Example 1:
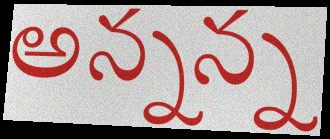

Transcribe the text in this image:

అన్నన్న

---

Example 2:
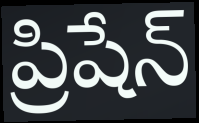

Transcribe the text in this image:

ప్రిషేన్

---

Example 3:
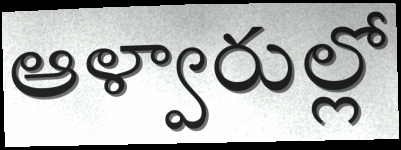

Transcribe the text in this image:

ఆళ్వారుల్లో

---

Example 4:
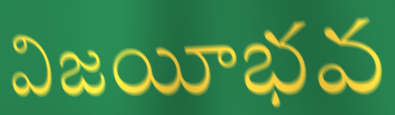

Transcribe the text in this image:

విజయీభవ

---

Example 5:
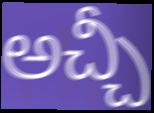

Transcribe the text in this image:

అచ్చీ